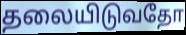
தலையிடுவதோ